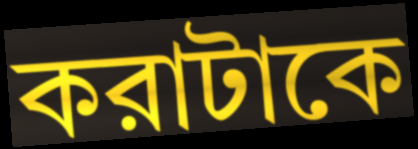
করাটাকে